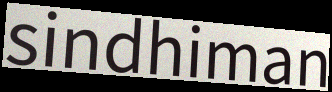
sindhiman